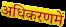
अधिकरणमें